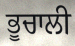
ਭੂਚਾਲੀ